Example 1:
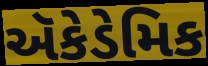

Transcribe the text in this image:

ઍકેડેમિક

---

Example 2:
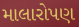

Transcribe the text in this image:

માલારોપણ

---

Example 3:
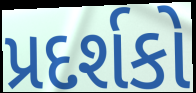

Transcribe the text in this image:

પ્રદર્શકો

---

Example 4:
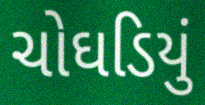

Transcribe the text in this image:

ચોઘડિયું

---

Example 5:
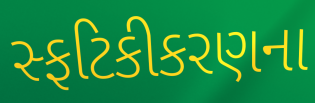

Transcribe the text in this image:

સ્ફટિકીકરણના